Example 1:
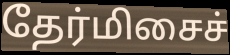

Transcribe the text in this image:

தேர்மிசைச்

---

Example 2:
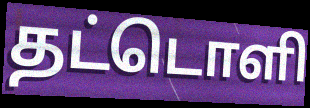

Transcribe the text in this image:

தட்டொளி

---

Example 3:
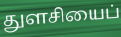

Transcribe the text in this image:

துளசியைப்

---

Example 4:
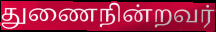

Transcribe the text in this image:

துணைநின்றவர்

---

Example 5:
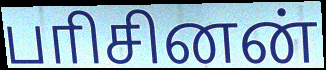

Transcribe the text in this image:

பரிசினன்